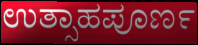
ಉತ್ಸಾಹಪೂರ್ಣ